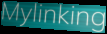
Mylinking